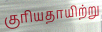
குரியதாயிற்று